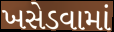
ખસેડવામાં